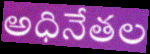
అధినేతల